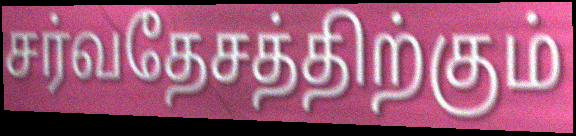
சர்வதேசத்திற்கும்